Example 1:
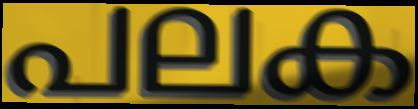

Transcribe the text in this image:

പലക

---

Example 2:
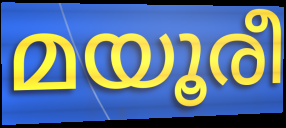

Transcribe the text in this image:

മയൂരീ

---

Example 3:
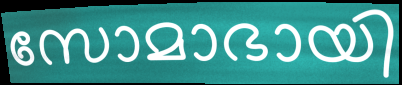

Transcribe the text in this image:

സോമാഭായി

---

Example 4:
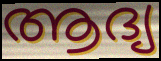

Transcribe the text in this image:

ആദ്യ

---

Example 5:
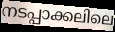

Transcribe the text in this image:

നടപ്പാക്കലിലെ